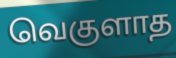
வெகுளாத